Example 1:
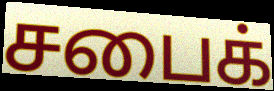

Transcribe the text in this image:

சபைக்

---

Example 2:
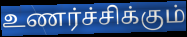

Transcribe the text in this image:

உணர்ச்சிக்கும்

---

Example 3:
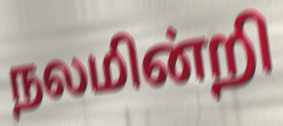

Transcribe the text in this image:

நலமின்றி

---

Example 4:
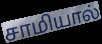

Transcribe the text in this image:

சாமியால்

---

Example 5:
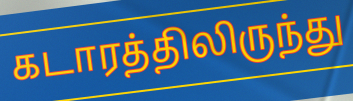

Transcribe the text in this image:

கடாரத்திலிருந்து